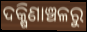
ଦକ୍ଷିଣାଞ୍ଚଳରୁ